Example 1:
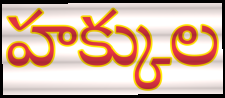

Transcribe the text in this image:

హక్కుల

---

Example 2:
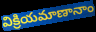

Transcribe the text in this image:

విక్రియమాణానాం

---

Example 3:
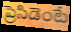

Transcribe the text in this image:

ప్రెసిడెంటే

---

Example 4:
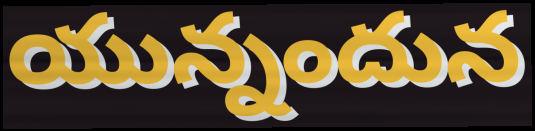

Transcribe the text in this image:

యున్నందున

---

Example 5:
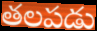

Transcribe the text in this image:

తలపడు